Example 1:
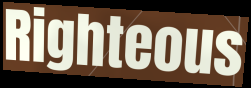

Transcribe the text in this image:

Righteous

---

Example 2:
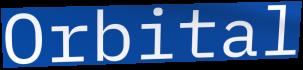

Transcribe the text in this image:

Orbital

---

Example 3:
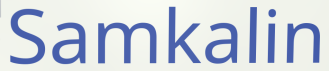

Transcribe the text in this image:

Samkalin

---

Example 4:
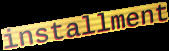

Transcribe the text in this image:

installment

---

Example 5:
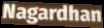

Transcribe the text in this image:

Nagardhan